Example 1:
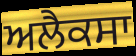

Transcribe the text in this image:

ਅਲੈਕਸਾ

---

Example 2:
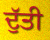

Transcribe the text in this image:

ਦੁੱਤੀ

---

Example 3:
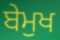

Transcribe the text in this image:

ਬੇਮੁਖ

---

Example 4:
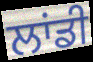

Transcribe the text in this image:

ਲਾਂਡੀ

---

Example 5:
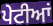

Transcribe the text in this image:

ਪੇਟੀਆਂ